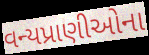
વન્યપ્રાણીઓના